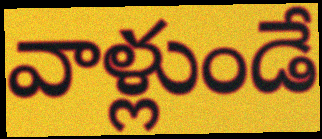
వాళ్లుండే